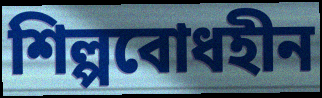
শিল্পবোধহীন